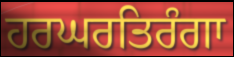
ਹਰਘਰਤਿਰੰਗਾ